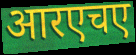
आरएचए